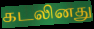
கடலினது